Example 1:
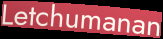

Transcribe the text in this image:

Letchumanan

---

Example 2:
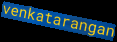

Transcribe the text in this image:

venkatarangan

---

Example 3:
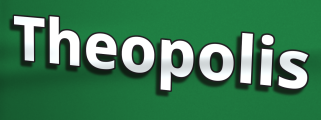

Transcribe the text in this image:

Theopolis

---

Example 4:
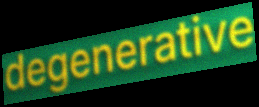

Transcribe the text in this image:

degenerative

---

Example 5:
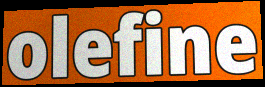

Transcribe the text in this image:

olefine